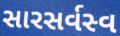
સારસર્વસ્વ